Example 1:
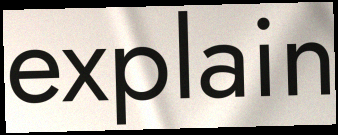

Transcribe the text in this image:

explain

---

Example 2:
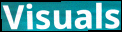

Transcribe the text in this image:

Visuals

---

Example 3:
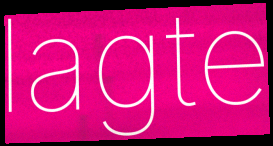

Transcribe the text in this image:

lagte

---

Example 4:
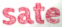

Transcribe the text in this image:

sate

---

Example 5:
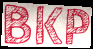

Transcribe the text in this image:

BKP